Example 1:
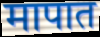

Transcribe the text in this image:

मापात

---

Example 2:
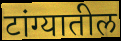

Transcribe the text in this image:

टांग्यातील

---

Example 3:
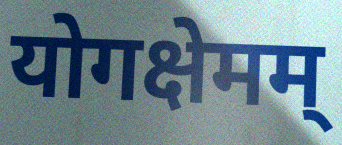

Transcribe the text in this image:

योगक्षेमम्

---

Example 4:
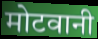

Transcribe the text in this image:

मोटवानी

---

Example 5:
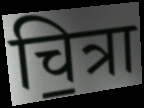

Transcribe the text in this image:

चि॒त्रा